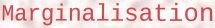
Marginalisation